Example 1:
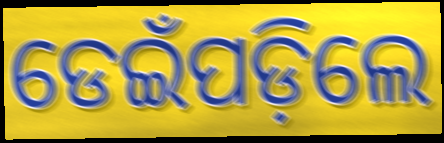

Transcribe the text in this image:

ଡେଇଁପଡ଼ିଲେ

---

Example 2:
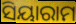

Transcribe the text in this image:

ସିୟାରାମ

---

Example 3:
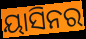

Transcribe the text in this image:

ୟାସିନର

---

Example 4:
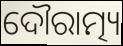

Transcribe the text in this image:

ଦୌରାତ୍ମ୍ୟ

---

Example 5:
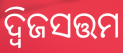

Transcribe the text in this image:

ଦ୍ୱିଜସତ୍ତମ